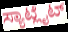
ಸ್ಯಾಟ್ಲೈಟ್